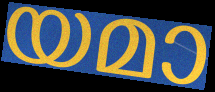
യമാ